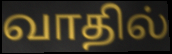
வாதில்